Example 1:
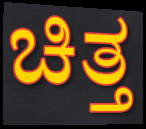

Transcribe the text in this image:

ಚಿತ್ತ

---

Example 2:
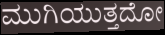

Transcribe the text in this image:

ಮುಗಿಯುತ್ತದೋ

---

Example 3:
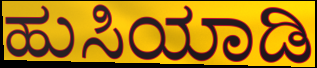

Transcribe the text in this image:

ಹುಸಿಯಾಡಿ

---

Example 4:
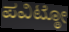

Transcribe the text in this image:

ಪವಿಟ್ಠೋ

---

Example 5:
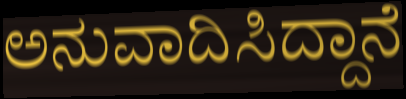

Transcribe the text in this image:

ಅನುವಾದಿಸಿದ್ದಾನೆ